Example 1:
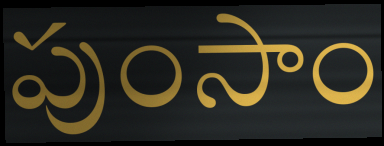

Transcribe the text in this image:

పుంసాం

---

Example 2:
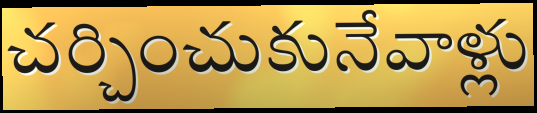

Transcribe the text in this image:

చర్చించుకునేవాళ్లు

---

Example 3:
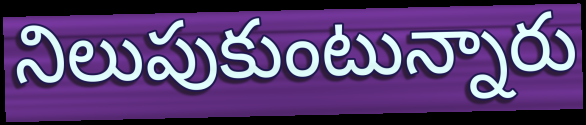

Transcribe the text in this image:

నిలుపుకుంటున్నారు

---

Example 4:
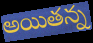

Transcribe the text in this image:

అయితన్న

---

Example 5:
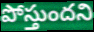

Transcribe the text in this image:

పోస్తుందని